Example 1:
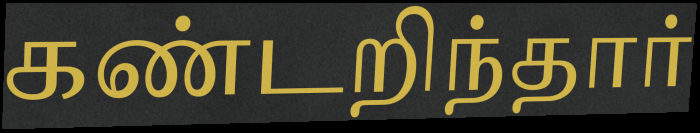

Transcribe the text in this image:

கண்டறிந்தார்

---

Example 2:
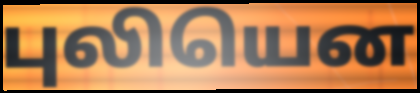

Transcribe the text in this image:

புலியென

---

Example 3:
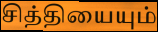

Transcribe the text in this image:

சித்தியையும்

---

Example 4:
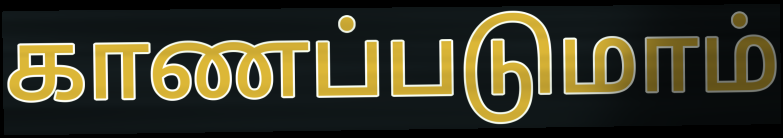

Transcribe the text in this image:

காணப்படுமாம்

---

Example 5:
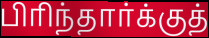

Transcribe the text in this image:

பிரிந்தார்க்குத்